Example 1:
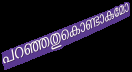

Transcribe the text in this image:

പറഞ്ഞതുകൊണ്ടാകുമോ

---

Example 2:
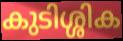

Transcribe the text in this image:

കുടിശ്ശിക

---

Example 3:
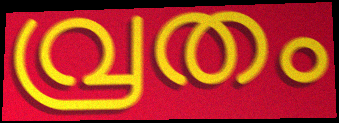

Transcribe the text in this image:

വ്രതം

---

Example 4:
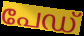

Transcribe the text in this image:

പേഡ്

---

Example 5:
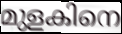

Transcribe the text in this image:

മുളകിനെ